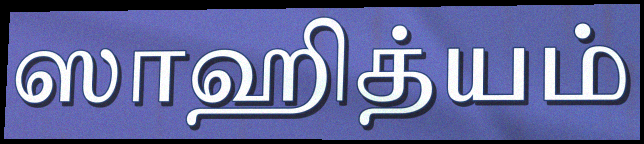
ஸாஹித்யம்